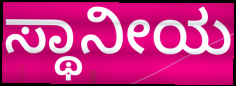
ಸ್ಥಾನೀಯ